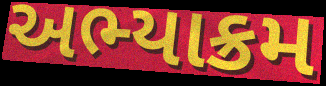
અભ્યાક્રમ